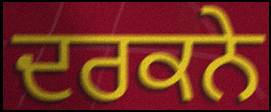
ਦਰਕਨੇ